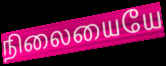
நிலையையே